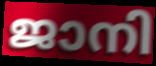
ജാനി